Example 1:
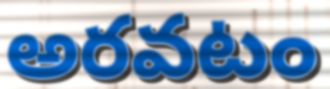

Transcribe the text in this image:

అరవటం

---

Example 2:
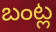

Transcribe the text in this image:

బంట్ల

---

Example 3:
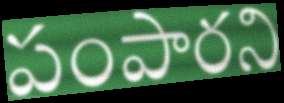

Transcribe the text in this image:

పంపారని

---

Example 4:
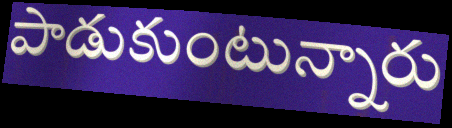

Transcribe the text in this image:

పాడుకుంటున్నారు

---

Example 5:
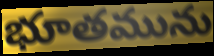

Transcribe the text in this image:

భూతమును